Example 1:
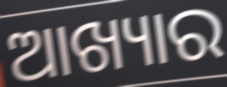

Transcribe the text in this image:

ଆଖ୍ୟାର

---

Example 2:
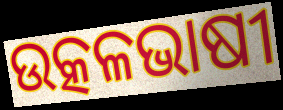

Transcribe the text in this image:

ଉତ୍କଳଭାଷୀ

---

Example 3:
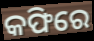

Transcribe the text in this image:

କଫିରେ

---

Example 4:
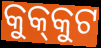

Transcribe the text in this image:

କୁକ୍‍କୁଟ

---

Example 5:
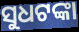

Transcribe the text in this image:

ସୁଧଟଙ୍କା